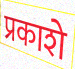
प्रकाशे